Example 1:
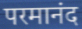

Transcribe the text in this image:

परमानंद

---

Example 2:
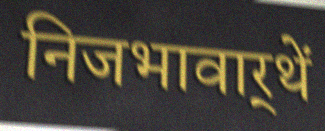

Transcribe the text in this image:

निजभावार्थें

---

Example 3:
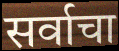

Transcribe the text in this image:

सर्वाचा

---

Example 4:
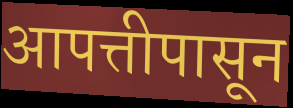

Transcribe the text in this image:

आपत्तीपासून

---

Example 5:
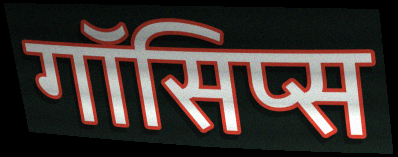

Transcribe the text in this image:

गॉसिप्स